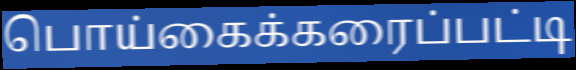
பொய்கைக்கரைப்பட்டி